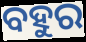
ବହୁର